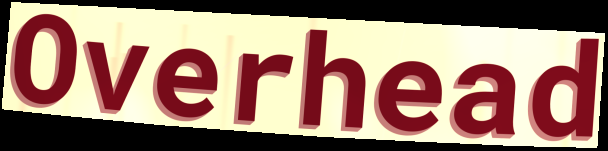
Overhead